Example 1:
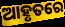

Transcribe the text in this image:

ଆହୃତରେ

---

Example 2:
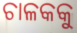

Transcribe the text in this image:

ଚାଳକକୁ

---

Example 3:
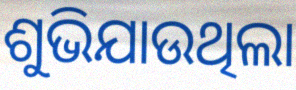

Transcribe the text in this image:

ଶୁଭିଯାଉଥିଲା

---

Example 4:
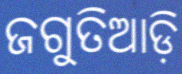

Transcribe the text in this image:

ଜଗୁତିଆଡ଼ି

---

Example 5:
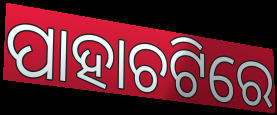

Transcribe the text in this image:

ପାହାଚଟିରେ